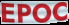
EPOC